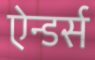
ऐन्डर्स